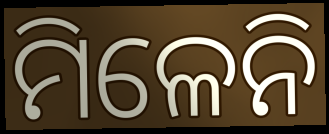
ମିଳେନି